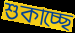
শুকাচ্ছে